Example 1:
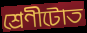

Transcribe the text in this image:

শ্ৰেণীটোত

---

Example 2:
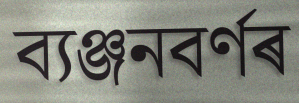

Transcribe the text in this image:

ব্যঞ্জনবৰ্ণৰ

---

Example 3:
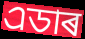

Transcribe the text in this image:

এডাৰ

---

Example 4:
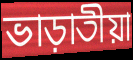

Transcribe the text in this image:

ভাড়াতীয়া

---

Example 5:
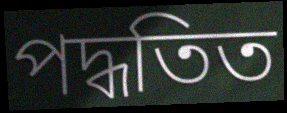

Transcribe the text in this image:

পদ্ধতিত